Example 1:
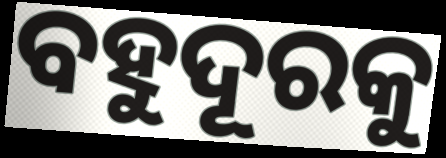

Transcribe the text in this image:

ବହୁଦୂରକୁ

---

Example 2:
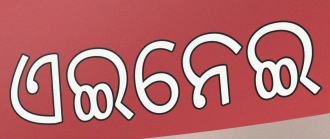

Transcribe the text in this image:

ଏଇନେଇ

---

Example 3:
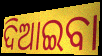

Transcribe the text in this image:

ଦିଆଇବା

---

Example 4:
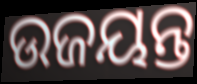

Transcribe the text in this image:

ଉଜୟନ୍ତ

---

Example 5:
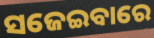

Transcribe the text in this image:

ସଜେଇବାରେ